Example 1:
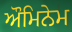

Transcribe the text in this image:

ਔਮਿਨੇਮ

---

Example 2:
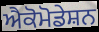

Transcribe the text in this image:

ਐਕੋਮੋਡੇਸ਼ਨ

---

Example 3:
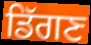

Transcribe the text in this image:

ਡਿੱਗਣ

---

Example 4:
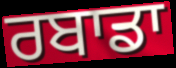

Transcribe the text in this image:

ਰਬਾਡਾ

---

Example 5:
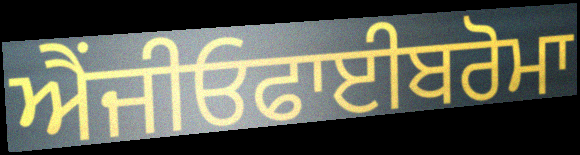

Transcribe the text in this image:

ਐਂਜੀਓਫਾਈਬਰੋਮਾ